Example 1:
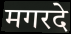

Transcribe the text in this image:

मगरदे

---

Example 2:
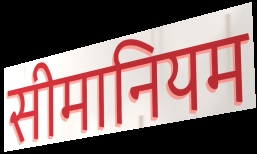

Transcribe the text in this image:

सीमानियम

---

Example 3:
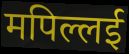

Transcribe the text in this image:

मपिल्लई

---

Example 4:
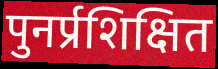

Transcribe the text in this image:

पुनर्प्रशिक्षित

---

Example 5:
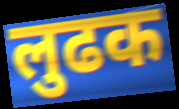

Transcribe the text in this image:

लुढक